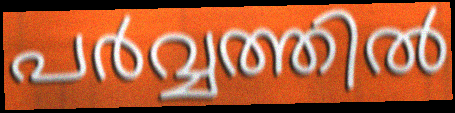
പർവ്വത്തിൽ